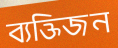
ব্যক্তিজন